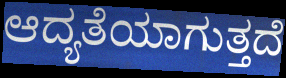
ಆದ್ಯತೆಯಾಗುತ್ತದೆ